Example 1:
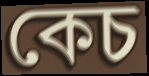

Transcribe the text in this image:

কেচ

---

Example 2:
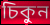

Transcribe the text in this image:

চিকুন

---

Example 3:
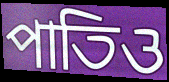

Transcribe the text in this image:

পাতিও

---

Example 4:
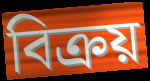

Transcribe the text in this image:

বিক্ৰয়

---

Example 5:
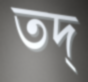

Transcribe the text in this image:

তদ্